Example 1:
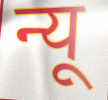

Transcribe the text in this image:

न्यू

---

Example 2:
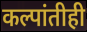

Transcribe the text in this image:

कल्पांतीही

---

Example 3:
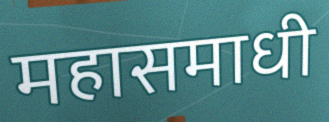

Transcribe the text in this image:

महासमाधी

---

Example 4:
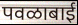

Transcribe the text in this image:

पवळाबाई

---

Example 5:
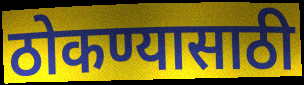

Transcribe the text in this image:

ठोकण्यासाठी